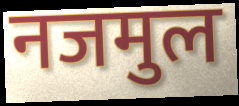
नजमुल